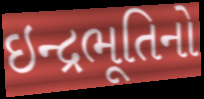
ઇન્દ્રભૂતિનો